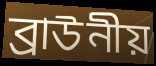
ব্ৰাউনীয়